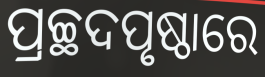
ପ୍ରଚ୍ଛଦପୃଷ୍ଠାରେ